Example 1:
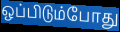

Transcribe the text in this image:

ஒப்பிடும்போது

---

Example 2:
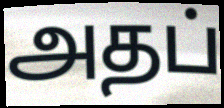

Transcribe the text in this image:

அதப்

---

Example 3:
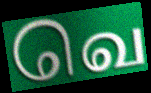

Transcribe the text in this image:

வெ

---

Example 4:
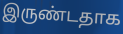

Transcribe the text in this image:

இருண்டதாக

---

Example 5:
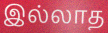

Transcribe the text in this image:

இல்லாத